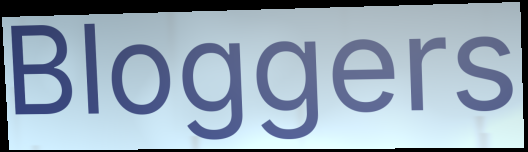
Bloggers